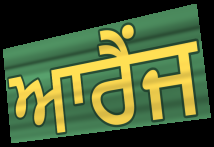
ਆਰੈਂਜ